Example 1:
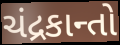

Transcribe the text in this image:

ચંદ્રકાન્તો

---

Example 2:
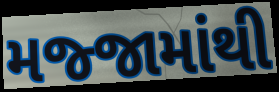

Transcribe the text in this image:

મજ્જામાંથી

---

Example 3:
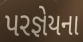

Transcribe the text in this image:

પરજ્ઞેયના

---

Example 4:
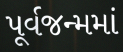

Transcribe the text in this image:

પૂર્વજન્મમાં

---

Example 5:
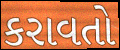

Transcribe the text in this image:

કરાવતો